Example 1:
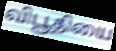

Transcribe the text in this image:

விபூதியை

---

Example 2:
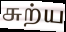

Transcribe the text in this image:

சுற்ய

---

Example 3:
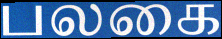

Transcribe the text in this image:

பலகை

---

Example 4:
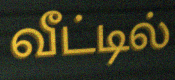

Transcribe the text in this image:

வீட்டில்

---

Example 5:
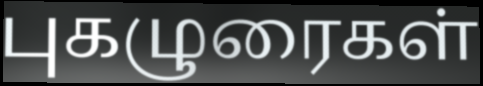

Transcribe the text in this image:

புகழுரைகள்